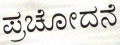
ಪ್ರಚೋದನೆ